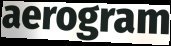
aerogram